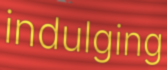
indulging